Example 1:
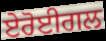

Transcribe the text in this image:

ਏਰੋਈਗਲ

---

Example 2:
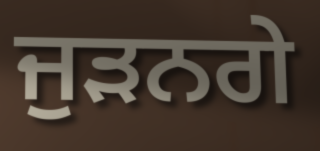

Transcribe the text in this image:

ਜੁਡ਼ਨਗੇ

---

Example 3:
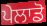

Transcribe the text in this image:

ਪੇਲਾਡੋ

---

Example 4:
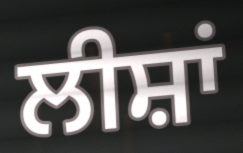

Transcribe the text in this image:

ਲੀਸ਼ਾਂ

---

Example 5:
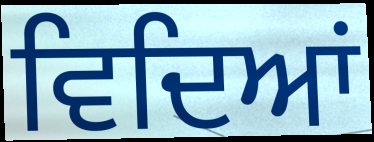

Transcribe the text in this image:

ਵਿਦਿਆਂ